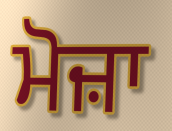
ਮੋਜ਼ਾ